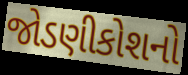
જોડણીકોશનો